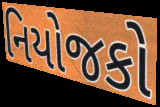
નિયોજકો